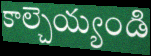
కాల్చెయ్యండి